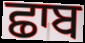
ਛਾਬ